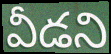
వీడని